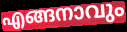
എങ്ങനാവും